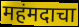
महंमदाचा